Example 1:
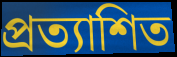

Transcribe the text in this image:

প্রত্যাশিত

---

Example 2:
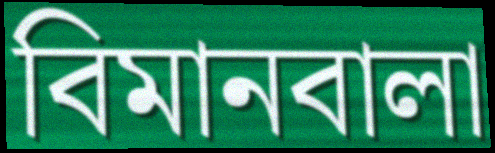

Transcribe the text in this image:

বিমানবালা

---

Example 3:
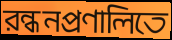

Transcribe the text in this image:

রন্ধনপ্রণালিতে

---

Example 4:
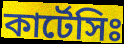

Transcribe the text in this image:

কার্টেসিঃ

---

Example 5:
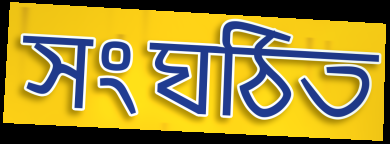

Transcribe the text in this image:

সংঘঠিত